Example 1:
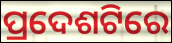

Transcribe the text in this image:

ପ୍ରଦେଶଟିରେ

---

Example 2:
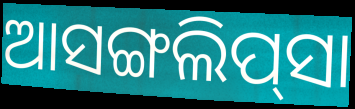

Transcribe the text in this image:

ଆସଙ୍ଗଲିପ୍‌ସା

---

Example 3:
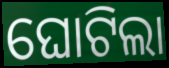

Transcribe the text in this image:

ଘୋଟିଲା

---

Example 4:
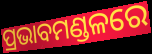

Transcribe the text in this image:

ପ୍ରଭାବମଣ୍ଡଳରେ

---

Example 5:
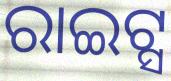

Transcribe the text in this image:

ରାଇଟ୍ସ